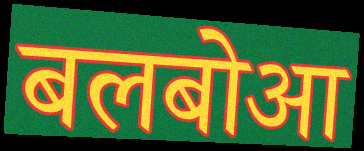
बलबोआ